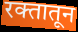
रक्तातून